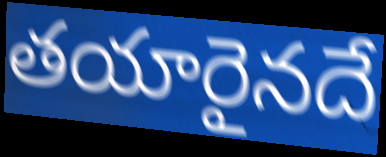
తయారైనదే